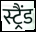
स्ट्रैंड